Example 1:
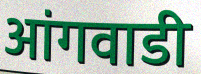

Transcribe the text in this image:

आंगवाडी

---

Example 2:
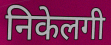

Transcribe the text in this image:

निकेलगी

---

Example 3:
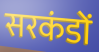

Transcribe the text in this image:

सरकंडों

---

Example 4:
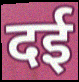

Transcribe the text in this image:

दई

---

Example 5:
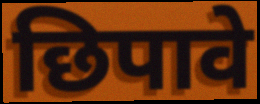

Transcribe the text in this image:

छिपावे